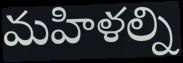
మహిళల్ని